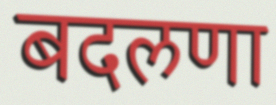
बदलणा